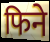
फिने